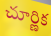
చూర్ణిక